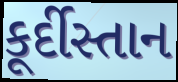
કૂર્દીસ્તાન